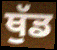
ਥੁੱਡ